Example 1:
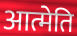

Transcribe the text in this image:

आत्मेति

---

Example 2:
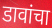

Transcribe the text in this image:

डावांचा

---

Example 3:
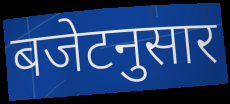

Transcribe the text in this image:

बजेटनुसार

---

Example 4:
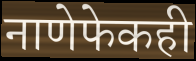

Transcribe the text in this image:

नाणेफेकही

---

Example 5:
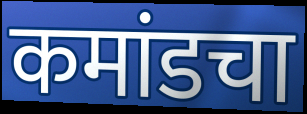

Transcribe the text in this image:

कमांडचा